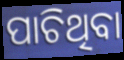
ପାଚିଥିବା